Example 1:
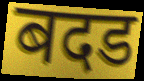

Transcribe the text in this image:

बदड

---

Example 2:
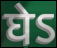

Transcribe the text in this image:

घेऽ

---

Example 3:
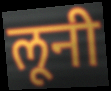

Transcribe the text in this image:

लूनी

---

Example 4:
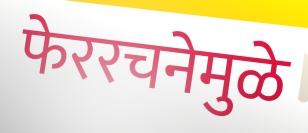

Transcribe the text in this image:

फेररचनेमुळे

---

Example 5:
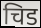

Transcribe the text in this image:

चिड